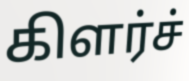
கிளர்ச்